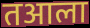
तआला